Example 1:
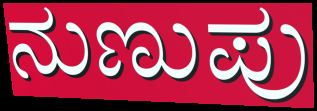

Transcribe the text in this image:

ನುಣುಪು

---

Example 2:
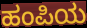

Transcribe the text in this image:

ಹಂಪಿಯ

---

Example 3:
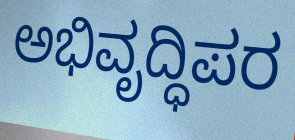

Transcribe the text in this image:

ಅಭಿವೃದ್ಧಿಪರ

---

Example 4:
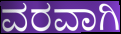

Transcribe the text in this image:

ವರವಾಗಿ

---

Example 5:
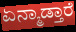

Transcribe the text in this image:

ಏನ್ಮಾಡ್ತಾರೆ